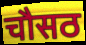
चौसठ